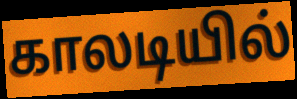
காலடியில்